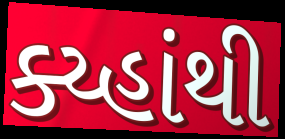
ક્ય્હાંથી